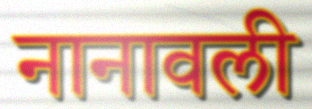
नानावली